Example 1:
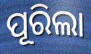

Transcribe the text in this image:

ପୂରିଲା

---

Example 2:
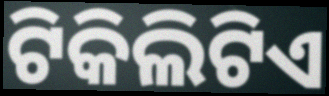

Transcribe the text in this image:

ଟିକିଲିଟିଏ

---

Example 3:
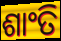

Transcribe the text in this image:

ଶାଂତି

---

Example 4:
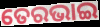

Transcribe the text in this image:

ତେରଭାଇ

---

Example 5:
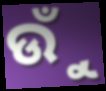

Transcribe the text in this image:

ଉୁଁ